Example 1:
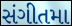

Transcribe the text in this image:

સંગીતમા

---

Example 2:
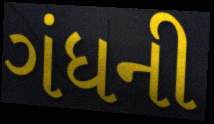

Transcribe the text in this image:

ગંધની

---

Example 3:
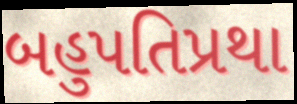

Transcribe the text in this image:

બહુપતિપ્રથા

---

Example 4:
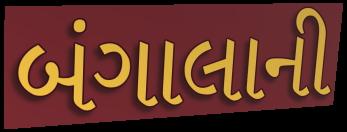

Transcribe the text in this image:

બંગાલાની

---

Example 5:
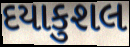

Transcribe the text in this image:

દયાકુશલ